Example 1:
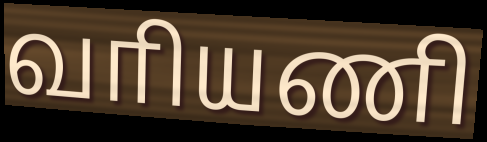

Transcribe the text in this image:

வரியணி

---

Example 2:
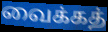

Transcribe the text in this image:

வைக்கத்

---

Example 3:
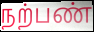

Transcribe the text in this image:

நற்பண்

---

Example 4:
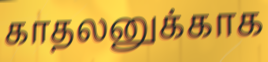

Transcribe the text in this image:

காதலனுக்காக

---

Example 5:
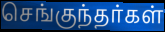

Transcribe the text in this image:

செங்குந்தர்கள்